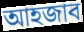
আহজাব